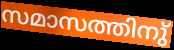
സമാസത്തിനു്